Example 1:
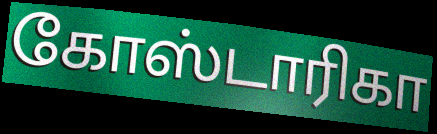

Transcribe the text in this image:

கோஸ்டாரிகா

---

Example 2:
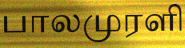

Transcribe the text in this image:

பாலமுரளி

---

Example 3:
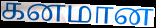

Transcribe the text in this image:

கனமான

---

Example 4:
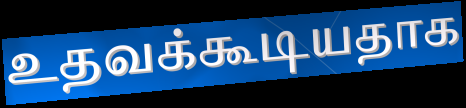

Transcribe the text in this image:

உதவக்கூடியதாக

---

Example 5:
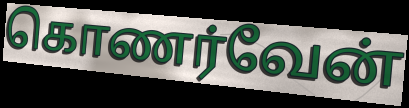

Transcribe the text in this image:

கொணர்வேன்